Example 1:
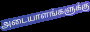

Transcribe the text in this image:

அடையாளங்களுக்கு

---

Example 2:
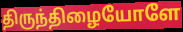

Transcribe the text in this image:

திருந்திழையோளே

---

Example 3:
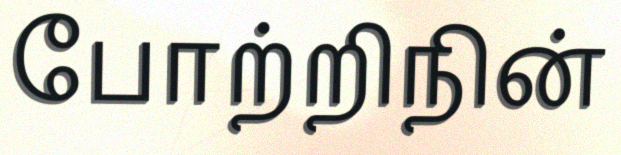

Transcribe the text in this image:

போற்றிநின்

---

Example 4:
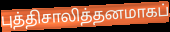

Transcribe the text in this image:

புத்திசாலித்தனமாகப்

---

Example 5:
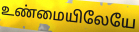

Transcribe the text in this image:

உண்மையிலேயே